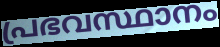
പ്രഭവസ്ഥാനം